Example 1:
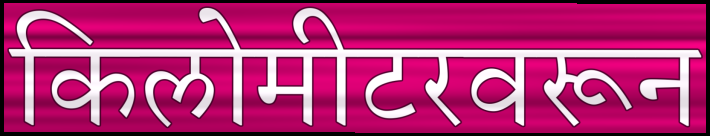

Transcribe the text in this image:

किलोमीटरवरून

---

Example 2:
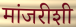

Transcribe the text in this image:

मांजरीशी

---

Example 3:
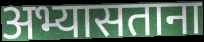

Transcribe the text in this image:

अभ्यासताना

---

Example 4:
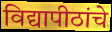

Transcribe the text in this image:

विद्यापीठांचे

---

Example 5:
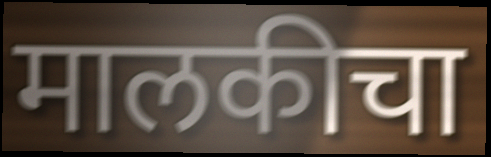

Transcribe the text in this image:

मालकीचा